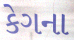
કેગના